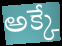
అక్కే